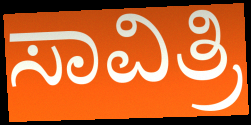
ಸಾವಿತ್ರಿ